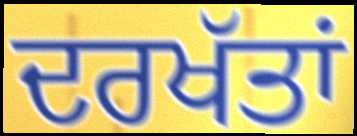
ਦਰਖੱਤਾਂ